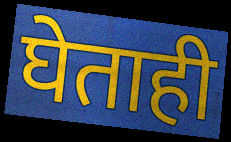
घेताही